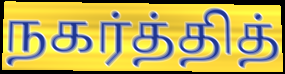
நகர்த்தித்